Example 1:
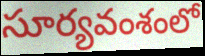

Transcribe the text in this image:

సూర్యవంశంలో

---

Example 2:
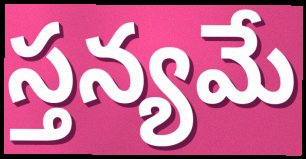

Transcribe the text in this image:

స్తన్యమే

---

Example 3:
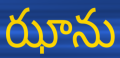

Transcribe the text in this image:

ఝాను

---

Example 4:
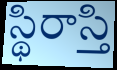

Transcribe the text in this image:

స్థిరాస్తి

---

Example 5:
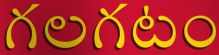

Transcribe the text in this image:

గలగటం